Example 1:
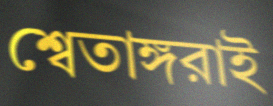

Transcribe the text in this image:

শ্বেতাঙ্গরাই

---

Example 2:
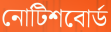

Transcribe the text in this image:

নোটিশবোর্ড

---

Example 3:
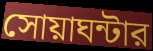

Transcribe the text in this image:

সোয়াঘন্টার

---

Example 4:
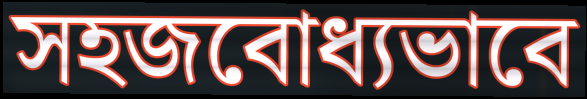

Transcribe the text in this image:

সহজবোধ্যভাবে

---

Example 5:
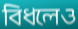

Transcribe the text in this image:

বিধলেও